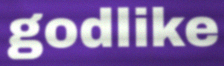
godlike